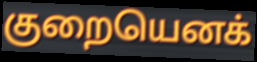
குறையெனக்